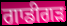
ਗਾਡੀਗੜ